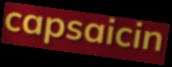
capsaicin